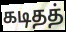
கடிதத்